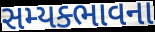
સમ્યક્ભાવના